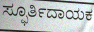
ಸ್ಫೂರ್ತಿದಾಯಕ